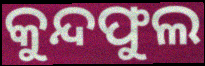
କୁନ୍ଦଫୁଲ